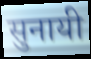
सुनायी